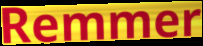
Remmer